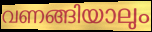
വണങ്ങിയാലും